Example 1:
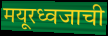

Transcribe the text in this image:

मयूरध्वजाची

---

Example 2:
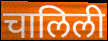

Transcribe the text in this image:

चालिली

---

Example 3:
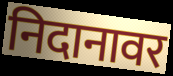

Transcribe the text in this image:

निदानावर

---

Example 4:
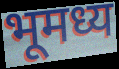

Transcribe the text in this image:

भूमध्य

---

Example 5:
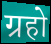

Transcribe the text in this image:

ग्रहो